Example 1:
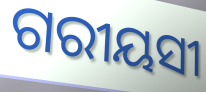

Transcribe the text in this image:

ଗରୀୟସୀ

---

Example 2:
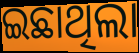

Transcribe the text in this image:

ଇଛାଥିଲା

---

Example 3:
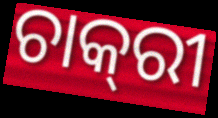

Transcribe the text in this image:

ଚାକ୍‌ରୀ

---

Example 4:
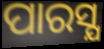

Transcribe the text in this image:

ପାରସ୍ଯ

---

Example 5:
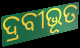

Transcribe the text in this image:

ଦ୍ରବୀଭୂତ